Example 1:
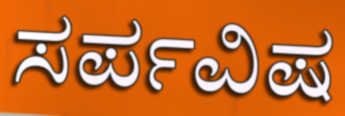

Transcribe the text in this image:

ಸರ್ಪವಿಷ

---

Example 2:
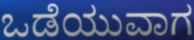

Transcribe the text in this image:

ಒಡೆಯುವಾಗ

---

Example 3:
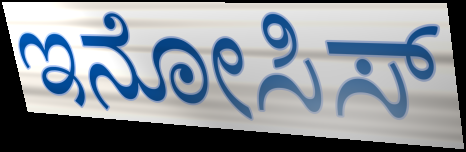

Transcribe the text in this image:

ಇನೋಸಿಸ್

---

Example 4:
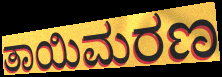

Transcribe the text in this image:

ತಾಯಿಮರಣ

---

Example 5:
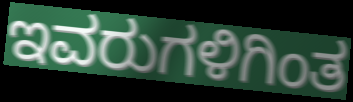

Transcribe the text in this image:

ಇವರುಗಳಿಗಿಂತ